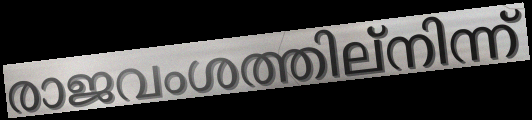
രാജവംശത്തില്നിന്ന്